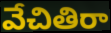
వేచితిరా